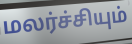
மலர்ச்சியும்